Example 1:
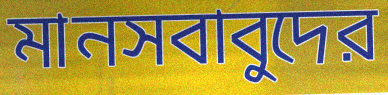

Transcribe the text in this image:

মানসবাবুদের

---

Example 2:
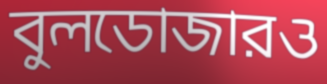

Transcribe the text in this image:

বুলডোজারও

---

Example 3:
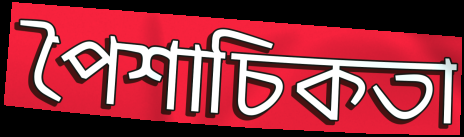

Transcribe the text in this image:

পৈশাচিকতা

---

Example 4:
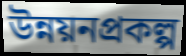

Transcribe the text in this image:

উন্নয়নপ্রকল্প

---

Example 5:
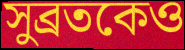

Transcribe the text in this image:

সুব্রতকেও